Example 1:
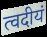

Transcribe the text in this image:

त्वदीयं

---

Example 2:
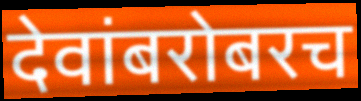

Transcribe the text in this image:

देवांबरोबरच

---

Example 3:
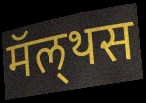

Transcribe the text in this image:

मॅल्थस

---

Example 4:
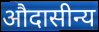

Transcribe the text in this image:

औदासीन्य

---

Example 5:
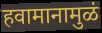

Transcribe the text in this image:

हवामानामुळं